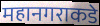
महानगराकडे